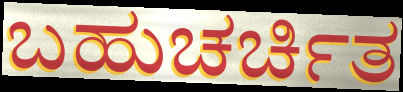
ಬಹುಚರ್ಚಿತ